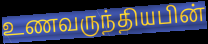
உணவருந்தியபின்